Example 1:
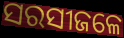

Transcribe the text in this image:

ସରସୀଜଳେ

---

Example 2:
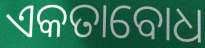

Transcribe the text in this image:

ଏକତାବୋଧ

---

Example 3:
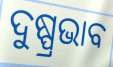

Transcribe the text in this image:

ଦୁଷ୍ପ୍ରଭାବ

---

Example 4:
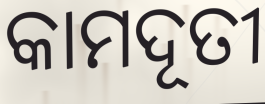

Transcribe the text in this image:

କାମଦୂତୀ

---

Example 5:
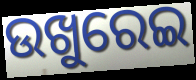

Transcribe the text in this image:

ଉଖୁରେଇ